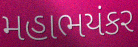
મહાભયંકર